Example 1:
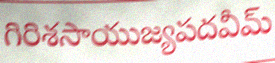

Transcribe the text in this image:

గిరిశసాయుజ్యపదవీమ్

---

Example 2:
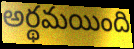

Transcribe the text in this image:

అర్థమయింది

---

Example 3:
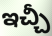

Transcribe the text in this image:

ఇచ్చీ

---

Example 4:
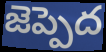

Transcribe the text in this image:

జెప్పెద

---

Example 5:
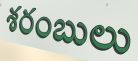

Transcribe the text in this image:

శరంబులు